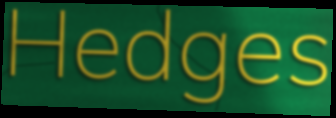
Hedges